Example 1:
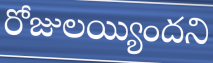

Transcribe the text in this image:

రోజులయ్యిందని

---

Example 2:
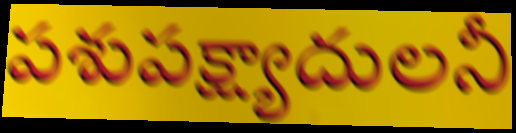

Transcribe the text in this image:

పశుపక్ష్యాదులనీ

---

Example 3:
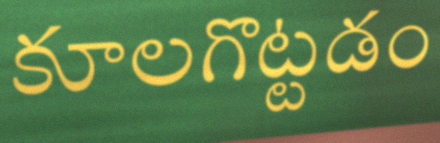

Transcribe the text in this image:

కూలగొట్టడం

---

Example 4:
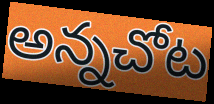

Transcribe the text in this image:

అన్నచోట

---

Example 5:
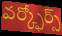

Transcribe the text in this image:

వర్క్ఫోర్స్